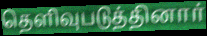
தெளிவுபடுத்தினார்